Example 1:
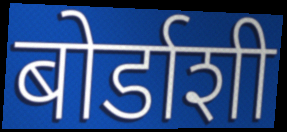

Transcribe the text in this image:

बोर्डाशी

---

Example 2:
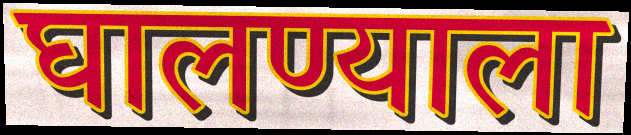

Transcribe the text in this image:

घालण्याला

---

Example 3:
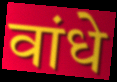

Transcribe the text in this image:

वांधे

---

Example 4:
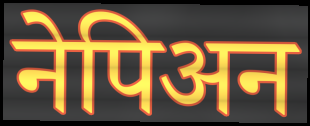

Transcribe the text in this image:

नेपिअन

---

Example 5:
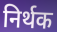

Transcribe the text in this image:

निर्थक